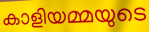
കാളിയമ്മയുടെ